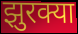
झुरक्या